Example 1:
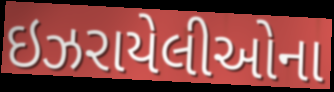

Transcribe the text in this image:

ઇઝરાયેલીઓના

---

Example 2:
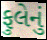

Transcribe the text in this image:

ફુલેનું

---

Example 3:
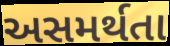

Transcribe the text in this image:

અસમર્થતા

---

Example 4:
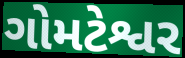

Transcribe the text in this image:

ગોમટેશ્વર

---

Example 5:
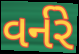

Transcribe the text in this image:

વર્નરે